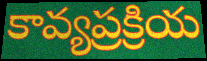
కావ్యప్రక్రియ